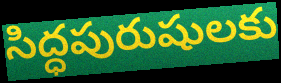
సిద్ధపురుషులకు